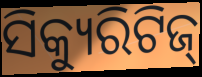
ସିକ୍ୟୁରିଟିଜ୍